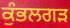
ਕੁੰਭਲਗੜ